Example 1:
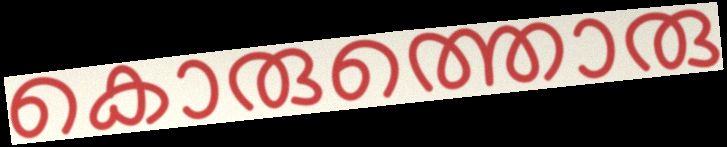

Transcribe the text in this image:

കൊരുത്തൊരു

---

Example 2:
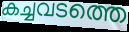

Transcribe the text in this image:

കച്ചവടത്തെ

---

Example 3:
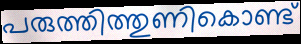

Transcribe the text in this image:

പരുത്തിത്തുണികൊണ്ട്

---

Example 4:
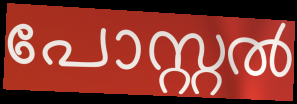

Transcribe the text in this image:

പോസ്റ്റൽ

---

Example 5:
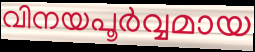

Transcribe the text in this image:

വിനയപൂർവ്വമായ